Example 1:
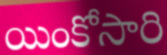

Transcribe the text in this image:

యింకోసారి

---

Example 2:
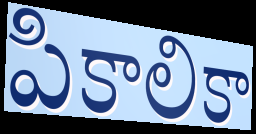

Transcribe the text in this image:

పికాలికా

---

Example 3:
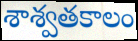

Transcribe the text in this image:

శాశ్వతకాలం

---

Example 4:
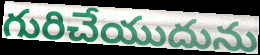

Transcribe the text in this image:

గురిచేయుదును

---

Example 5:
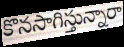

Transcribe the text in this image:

కొనసాగిస్తున్నారా